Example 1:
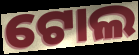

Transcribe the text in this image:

ଟୋଲ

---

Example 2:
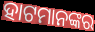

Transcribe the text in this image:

ହାଟମାନଙ୍କର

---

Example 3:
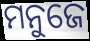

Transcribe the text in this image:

ମନୁଜେ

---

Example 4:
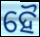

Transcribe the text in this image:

ହୈ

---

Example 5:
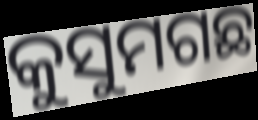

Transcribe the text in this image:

କୁସୁମଗଛ